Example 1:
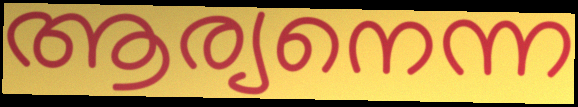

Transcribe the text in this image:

ആര്യനെന്ന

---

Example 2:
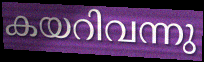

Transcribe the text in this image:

കയറിവന്നു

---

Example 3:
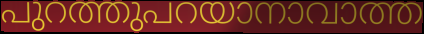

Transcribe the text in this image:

പുറത്തുപറയാനാവാത്ത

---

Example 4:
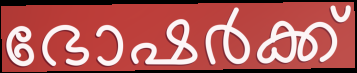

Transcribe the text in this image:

ഭോഷർക്ക്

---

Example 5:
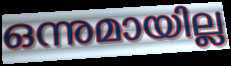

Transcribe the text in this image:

ഒന്നുമായില്ല